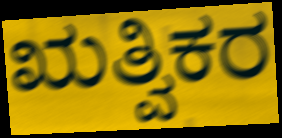
ಋತ್ವಿಕರ